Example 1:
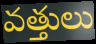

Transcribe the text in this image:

వత్తులు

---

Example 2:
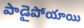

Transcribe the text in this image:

పాడైపోయాయి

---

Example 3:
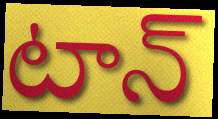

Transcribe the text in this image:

టాన్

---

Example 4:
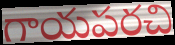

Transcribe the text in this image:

గాయపరచి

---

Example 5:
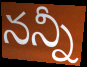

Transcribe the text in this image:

నన్నీ